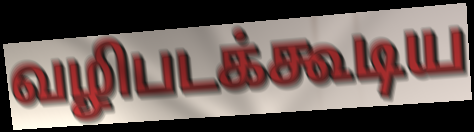
வழிபடக்கூடிய